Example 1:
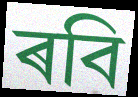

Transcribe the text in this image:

ৰবি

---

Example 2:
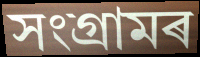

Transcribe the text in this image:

সংগ্ৰামৰ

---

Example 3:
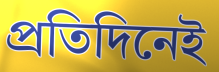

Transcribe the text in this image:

প্ৰতিদিনেই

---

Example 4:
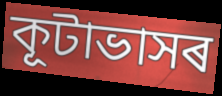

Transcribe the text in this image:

কূটাভাসৰ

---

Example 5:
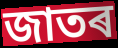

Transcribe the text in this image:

জাতৰ